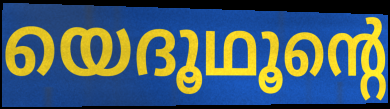
യെദൂഥൂന്റെ